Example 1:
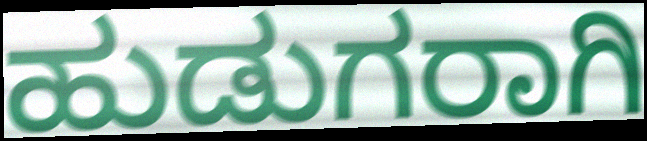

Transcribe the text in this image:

ಹುಡುಗರಾಗಿ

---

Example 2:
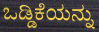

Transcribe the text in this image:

ಒಡ್ಡಿಕೆಯನ್ನು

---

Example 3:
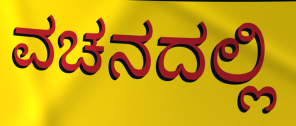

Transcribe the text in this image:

ವಚನದಲ್ಲಿ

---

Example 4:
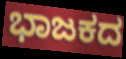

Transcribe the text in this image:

ಭಾಜಕದ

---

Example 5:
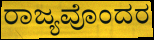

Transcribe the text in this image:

ರಾಜ್ಯವೊಂದರ